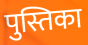
पुस्तिका